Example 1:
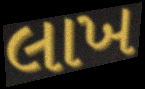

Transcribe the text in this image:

લાખ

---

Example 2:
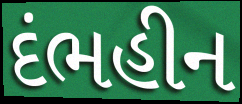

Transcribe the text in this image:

દંભહીન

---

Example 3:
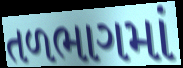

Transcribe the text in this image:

તળભાગમાં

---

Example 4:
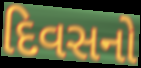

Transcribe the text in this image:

દિવસનો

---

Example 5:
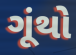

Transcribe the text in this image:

ગૂંથો